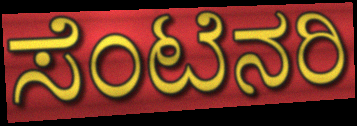
ಸೆಂಟೆನರಿ